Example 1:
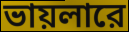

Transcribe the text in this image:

ভায়লারে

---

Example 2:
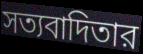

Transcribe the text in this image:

সত্যবাদিতার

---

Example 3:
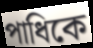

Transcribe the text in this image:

পাধিকে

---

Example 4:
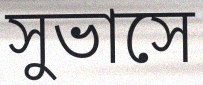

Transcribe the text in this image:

সুভাসে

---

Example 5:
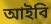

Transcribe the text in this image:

আইবি